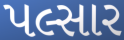
પલ્સાર